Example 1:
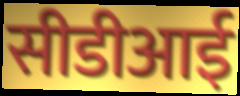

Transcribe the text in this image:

सीडीआई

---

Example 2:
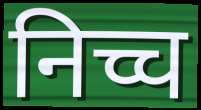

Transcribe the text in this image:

निच्च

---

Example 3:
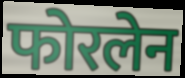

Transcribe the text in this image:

फोरलेन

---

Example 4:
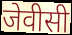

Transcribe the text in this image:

जेवीसी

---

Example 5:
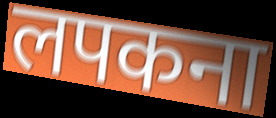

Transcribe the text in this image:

लपकना